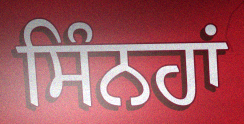
ਸਿੰਨਹਾਂ